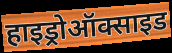
हाइड्रोऑक्साइड